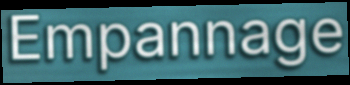
Empannage